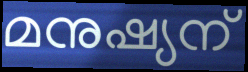
മനുഷ്യന്